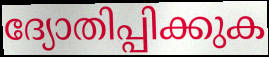
ദ്യോതിപ്പിക്കുക